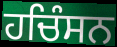
ਹਚਿੰਸਨ